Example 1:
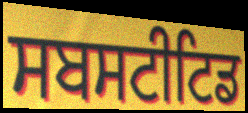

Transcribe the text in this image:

ਸਬਸਟੀਟਿਡ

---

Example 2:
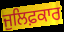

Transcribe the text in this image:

ਜੁਲਿਫ਼ਕਾਰ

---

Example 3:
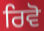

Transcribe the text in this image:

ਰਿਵੋ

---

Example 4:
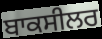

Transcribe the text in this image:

ਬਾਕਸੀਲਰ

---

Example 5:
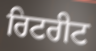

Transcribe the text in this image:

ਰਿਟਰੀਟ